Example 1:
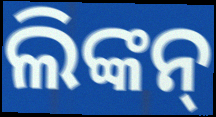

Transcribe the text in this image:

ଲିଙ୍କନ୍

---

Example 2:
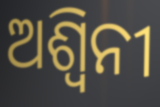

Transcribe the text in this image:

ଅଶ୍ୱିନୀ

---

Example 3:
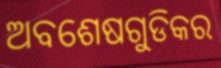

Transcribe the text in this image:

ଅବଶେଷଗୁଡିକର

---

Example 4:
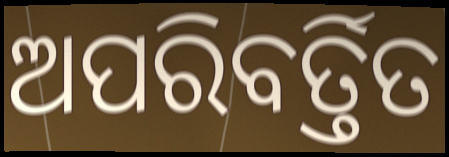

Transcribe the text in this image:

ଅପରିବର୍ତ୍ତିତ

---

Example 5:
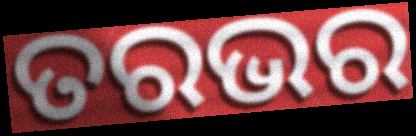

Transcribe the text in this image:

ତରଭର